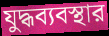
যুদ্ধব্যবস্থার